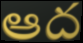
ఆద